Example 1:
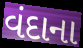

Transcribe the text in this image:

વંદાના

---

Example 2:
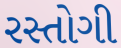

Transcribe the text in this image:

રસ્તોગી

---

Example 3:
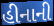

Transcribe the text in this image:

હીનાની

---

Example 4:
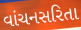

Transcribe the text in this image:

વાંચનસરિતા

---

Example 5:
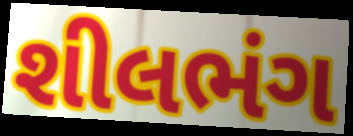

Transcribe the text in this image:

શીલભંગ